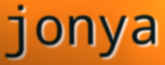
jonya